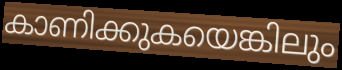
കാണിക്കുകയെങ്കിലും